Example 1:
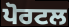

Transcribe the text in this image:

ਪੋਰਟਲ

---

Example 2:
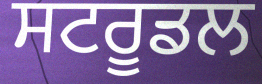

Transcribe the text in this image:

ਸਟਰੂਡਲ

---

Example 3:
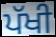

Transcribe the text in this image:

ਪੱਖੀ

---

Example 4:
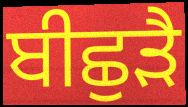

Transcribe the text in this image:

ਬੀਛੁੜੈ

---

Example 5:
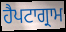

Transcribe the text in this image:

ਹੈਪਟਾਗ੍ਰਾਮ